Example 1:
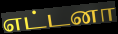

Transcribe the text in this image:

எட்டனா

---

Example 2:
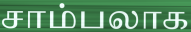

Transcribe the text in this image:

சாம்பலாக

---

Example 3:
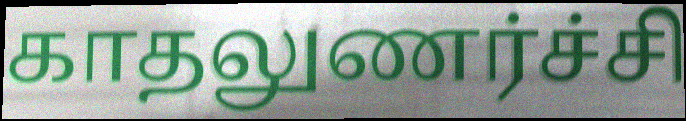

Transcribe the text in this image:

காதலுணர்ச்சி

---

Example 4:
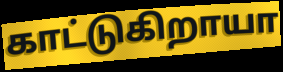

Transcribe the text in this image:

காட்டுகிறாயா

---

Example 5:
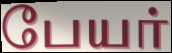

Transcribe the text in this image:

பேயர்